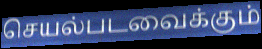
செயல்படவைக்கும்